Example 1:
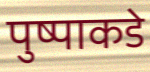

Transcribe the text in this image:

पुष्पाकडे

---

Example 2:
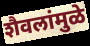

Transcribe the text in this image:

शैवलांमुळे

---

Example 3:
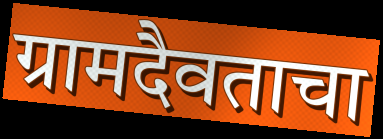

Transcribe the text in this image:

ग्रामदैवताचा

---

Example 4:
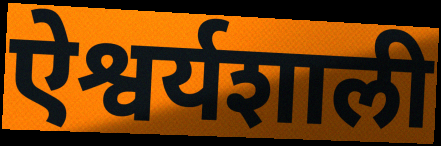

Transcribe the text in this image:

ऐश्वर्यशाली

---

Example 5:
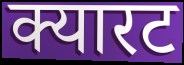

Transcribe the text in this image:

क्यारट